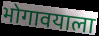
भोगावयाला